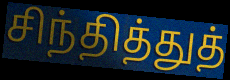
சிந்தித்துத்